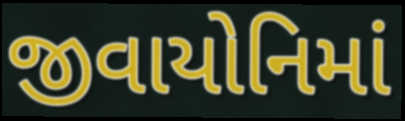
જીવાયોનિમાં